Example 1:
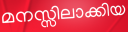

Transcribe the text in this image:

മനസ്സിലാക്കിയ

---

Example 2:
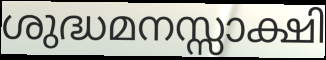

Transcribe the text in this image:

ശുദ്ധമനസ്സാക്ഷി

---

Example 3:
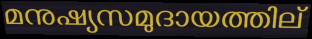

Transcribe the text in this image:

മനുഷ്യസമുദായത്തില്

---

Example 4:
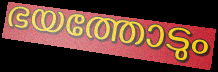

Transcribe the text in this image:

ഭയത്തോടും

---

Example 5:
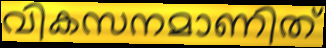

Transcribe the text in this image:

വികസനമാണിത്